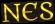
NES